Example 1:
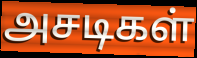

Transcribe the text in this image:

அசடிகள்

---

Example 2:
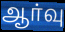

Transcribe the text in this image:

ஆர்வு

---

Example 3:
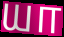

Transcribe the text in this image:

யா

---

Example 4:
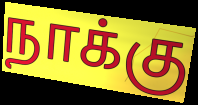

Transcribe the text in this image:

நாக்கு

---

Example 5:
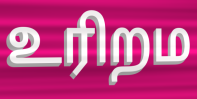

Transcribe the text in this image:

உரிறம